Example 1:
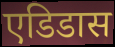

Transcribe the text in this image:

एडिडास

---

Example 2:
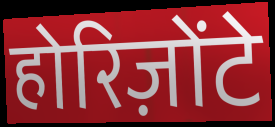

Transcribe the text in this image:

होरिज़ोंटे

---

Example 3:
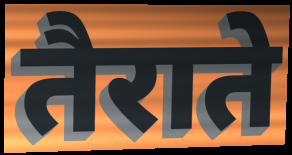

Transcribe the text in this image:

तैराते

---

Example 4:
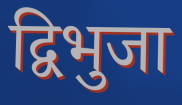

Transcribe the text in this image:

द्विभुजा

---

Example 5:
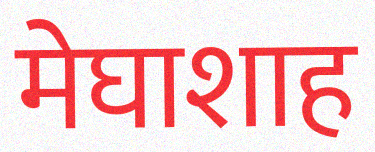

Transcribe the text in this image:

मेघाशाह